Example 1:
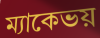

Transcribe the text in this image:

ম্যাকেভয়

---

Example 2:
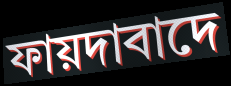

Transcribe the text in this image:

ফায়দাবাদে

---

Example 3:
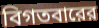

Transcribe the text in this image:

বিগতবারের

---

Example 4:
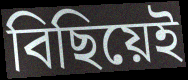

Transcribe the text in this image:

বিছিয়েই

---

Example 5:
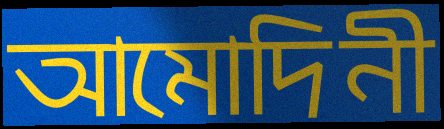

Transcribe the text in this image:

আমোদিনী